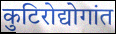
कुटिरोद्योगांत